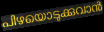
പിഴയൊടുക്കുവാൻ